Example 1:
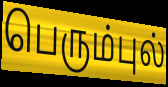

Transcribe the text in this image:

பெரும்புல்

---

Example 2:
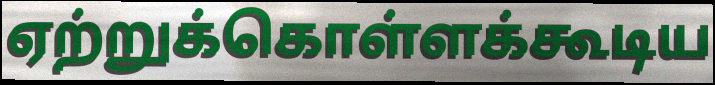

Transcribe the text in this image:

ஏற்றுக்கொள்ளக்கூடிய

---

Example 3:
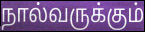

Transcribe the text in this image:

நால்வருக்கும்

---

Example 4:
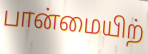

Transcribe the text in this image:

பான்மையிற்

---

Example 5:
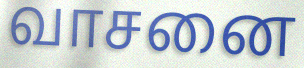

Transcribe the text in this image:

வாசனை